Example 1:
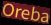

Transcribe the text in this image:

Oreba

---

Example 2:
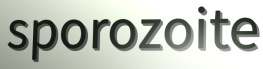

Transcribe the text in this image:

sporozoite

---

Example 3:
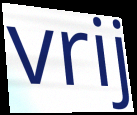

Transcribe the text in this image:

vrij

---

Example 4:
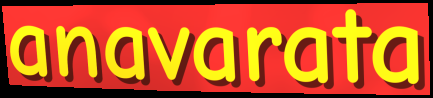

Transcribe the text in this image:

anavarata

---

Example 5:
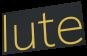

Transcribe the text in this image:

lute